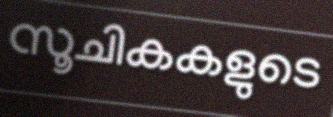
സൂചികകളുടെ